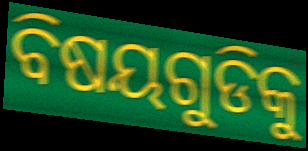
ବିଷୟଗୁଡିକୁ